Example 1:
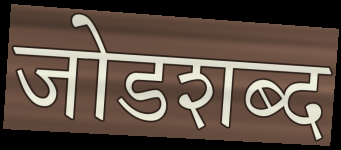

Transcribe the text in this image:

जोडशब्द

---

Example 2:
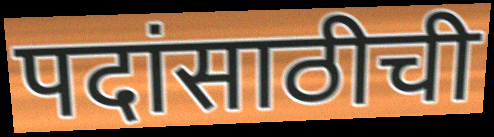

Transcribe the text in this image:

पदांसाठीची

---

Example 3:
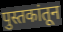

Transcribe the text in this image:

पुस्तकांतून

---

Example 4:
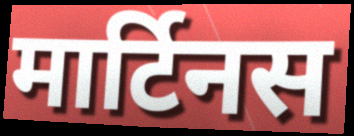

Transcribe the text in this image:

मार्टिनस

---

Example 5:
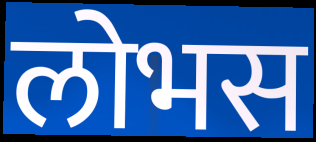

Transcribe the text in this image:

लोभस